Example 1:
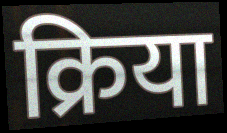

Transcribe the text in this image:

क्रिया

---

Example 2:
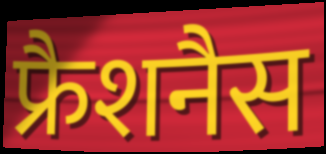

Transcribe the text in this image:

फ्रैशनैस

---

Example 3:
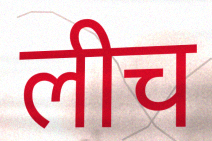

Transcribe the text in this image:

लीच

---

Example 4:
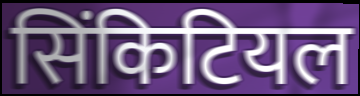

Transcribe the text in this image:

सिंकिटियल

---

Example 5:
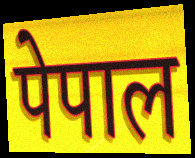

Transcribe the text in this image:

पेपाल